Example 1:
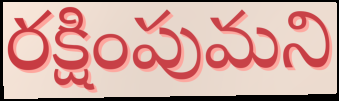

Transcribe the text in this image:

రక్షింపుమని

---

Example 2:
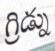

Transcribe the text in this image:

గ్రిడ్ను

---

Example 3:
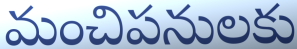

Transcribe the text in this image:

మంచిపనులకు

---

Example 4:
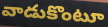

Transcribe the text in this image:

వాడుకొంటూ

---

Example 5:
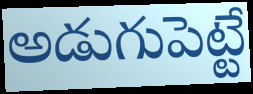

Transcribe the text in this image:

అడుగుపెట్టే